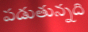
పడుతున్నది